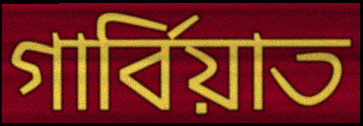
গার্বিয়াত